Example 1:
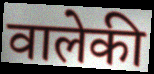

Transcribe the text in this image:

वालेकी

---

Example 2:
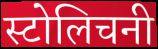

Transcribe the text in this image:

स्टोलिचनी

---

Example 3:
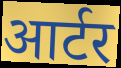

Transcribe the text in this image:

आर्टर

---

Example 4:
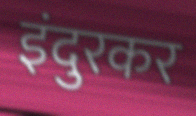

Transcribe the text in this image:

इंदुरकर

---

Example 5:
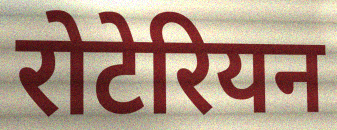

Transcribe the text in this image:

रोटेरियन